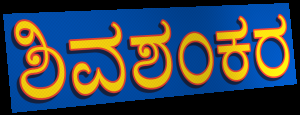
ಶಿವಶಂಕರ